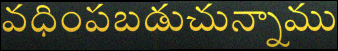
వధింపబడుచున్నాము